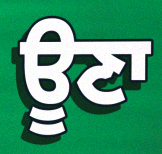
ਊਣਾ